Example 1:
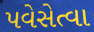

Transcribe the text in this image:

પવેસેત્વા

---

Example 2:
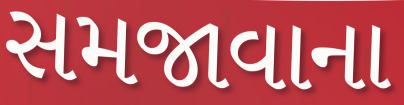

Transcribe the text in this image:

સમજાવાના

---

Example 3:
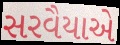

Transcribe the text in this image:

સરવૈયાએ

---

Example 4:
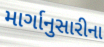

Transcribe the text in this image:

માર્ગાનુસારીના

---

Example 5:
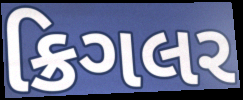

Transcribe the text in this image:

ક્રિગલર